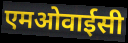
एमओवाईसी